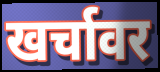
खर्चावर